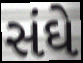
સંઘે